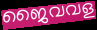
ജൈവവള